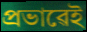
প্ৰভাৱেই